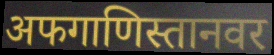
अफगाणिस्तानवर